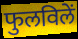
फुलविलें